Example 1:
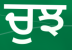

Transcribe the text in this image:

ਚੁਝ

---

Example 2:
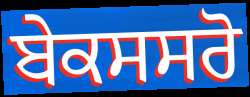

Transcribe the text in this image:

ਬੇਕਸਸਰੋ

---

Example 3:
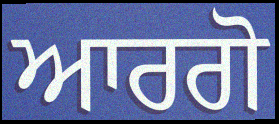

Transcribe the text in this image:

ਆਰਗੋ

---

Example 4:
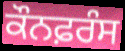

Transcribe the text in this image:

ਕੌਨਫ਼ਰੰਸ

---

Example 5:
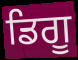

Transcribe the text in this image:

ਡਿਗੂ